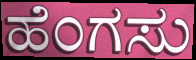
ಹೆಂಗಸು